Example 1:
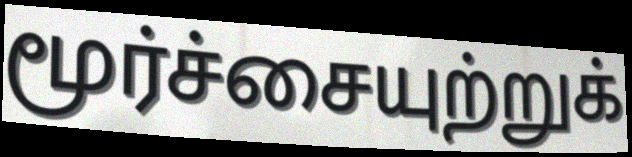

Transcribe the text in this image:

மூர்ச்சையுற்றுக்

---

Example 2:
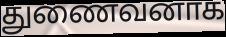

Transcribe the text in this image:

துணைவனாக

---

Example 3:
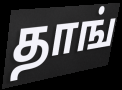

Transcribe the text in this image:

தாங்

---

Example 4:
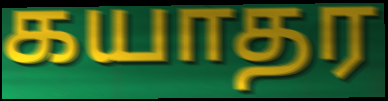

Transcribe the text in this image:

கயாதர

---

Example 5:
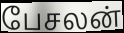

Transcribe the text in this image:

பேசலன்